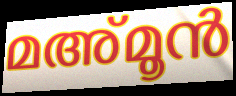
മഅ്മൂൻ